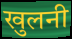
खुलनी